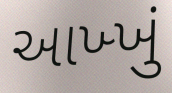
આખ્ખું